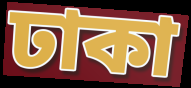
ঢাকা